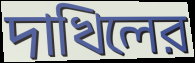
দাখিলের